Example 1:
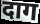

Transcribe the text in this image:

दाग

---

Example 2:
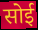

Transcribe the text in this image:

सोई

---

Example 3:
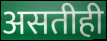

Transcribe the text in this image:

असतीही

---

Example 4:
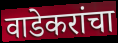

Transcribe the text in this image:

वाडेकरांचा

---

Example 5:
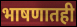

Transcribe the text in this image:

भाषणातही